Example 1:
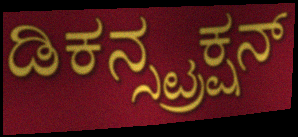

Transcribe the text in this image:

ಡಿಕನ್ಸ್ಟ್ರಕ್ಷನ್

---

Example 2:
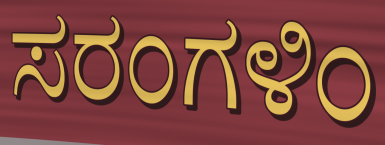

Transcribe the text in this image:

ಸರಂಗಳಿಂ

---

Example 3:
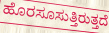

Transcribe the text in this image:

ಹೊರಸೂಸುತ್ತಿರುತ್ತದೆ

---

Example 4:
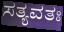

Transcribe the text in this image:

ಸತ್ಯವತಃ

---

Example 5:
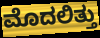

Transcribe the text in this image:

ಮೊದಲಿತ್ತು